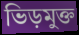
ভিড়মুক্ত